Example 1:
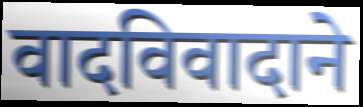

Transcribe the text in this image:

वादविवादाने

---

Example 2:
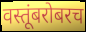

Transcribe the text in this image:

वस्तूंबरोबरच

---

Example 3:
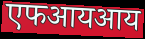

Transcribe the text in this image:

एफआयआय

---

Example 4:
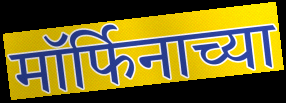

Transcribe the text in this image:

मॉर्फिनाच्या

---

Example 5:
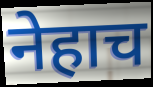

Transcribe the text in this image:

नेहाच